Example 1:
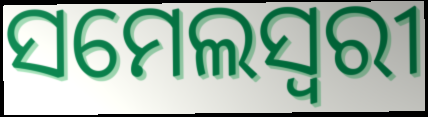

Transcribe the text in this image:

ସମେଲସ୍ୱରୀ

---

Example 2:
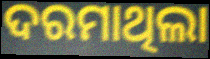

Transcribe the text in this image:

ଦରମାଥିଲା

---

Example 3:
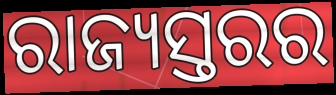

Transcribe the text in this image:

ରାଜ୍ୟସ୍ତରର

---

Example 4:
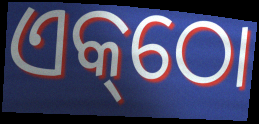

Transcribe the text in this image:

ଏକ୍‌ଠୋ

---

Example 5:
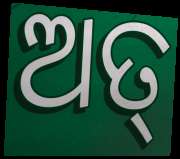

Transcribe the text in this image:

ଅତ୍